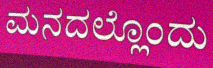
ಮನದಲ್ಲೊಂದು